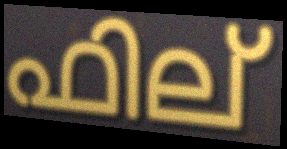
ഫില്